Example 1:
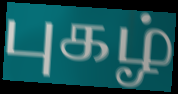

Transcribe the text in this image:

புகழ்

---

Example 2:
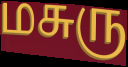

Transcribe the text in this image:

மசுரு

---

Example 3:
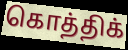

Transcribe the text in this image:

கொத்திக்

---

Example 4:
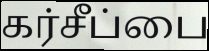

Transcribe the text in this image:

கர்சீப்பை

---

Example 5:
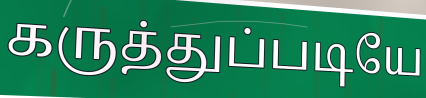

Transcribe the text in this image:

கருத்துப்படியே